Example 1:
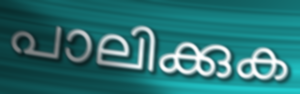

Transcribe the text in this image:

പാലിക്കുക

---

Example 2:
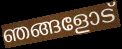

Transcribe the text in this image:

ഞങ്ങളോട്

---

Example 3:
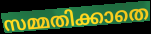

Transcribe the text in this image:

സമ്മതിക്കാതെ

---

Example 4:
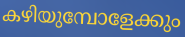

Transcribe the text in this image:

കഴിയുമ്പോളേക്കും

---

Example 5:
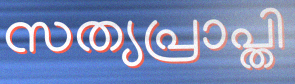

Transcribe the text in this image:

സത്യപ്രാപ്തി